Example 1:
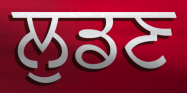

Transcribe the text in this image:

ਲੁਡਣ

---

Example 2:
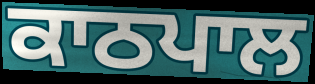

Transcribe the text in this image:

ਕਾਠਪਾਲ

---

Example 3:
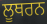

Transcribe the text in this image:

ਲੂਥਰਨ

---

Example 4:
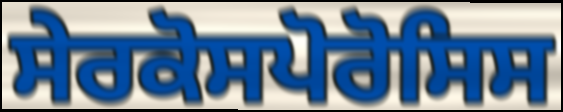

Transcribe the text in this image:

ਸੇਰਕੋਸਪੋਰੋਸਿਸ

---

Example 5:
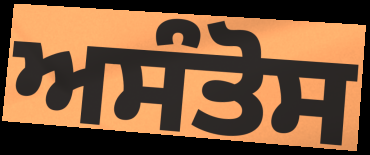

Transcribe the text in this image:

ਅਸੰਤੋਸ